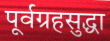
पूर्वग्रहसुद्धा